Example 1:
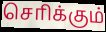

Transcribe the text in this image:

செரிக்கும்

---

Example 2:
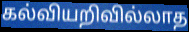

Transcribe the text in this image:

கல்வியறிவில்லாத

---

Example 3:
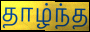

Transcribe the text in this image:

தாழ்ந்த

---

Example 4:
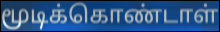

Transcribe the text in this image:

மூடிக்கொண்டாள்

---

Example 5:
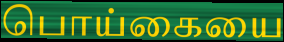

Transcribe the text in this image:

பொய்கையை